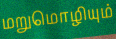
மறுமொழியும்